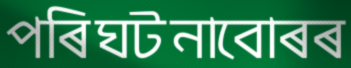
পৰিঘটনাবোৰৰ